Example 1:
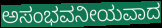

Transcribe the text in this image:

ಅಸಂಭವನೀಯವಾದ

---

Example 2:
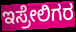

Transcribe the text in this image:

ಇಸ್ರೇಲಿಗರ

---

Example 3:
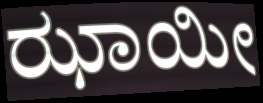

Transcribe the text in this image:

ಝಾಯೀ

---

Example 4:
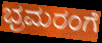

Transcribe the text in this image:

ಭ್ರಮರಂಗೆ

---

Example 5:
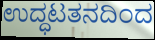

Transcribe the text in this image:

ಉದ್ಧಟತನದಿಂದ